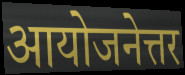
आयोजनेत्तर